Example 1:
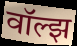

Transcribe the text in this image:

वॉल्झ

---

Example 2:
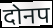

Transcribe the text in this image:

दोनप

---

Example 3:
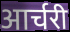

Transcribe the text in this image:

आर्चरी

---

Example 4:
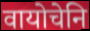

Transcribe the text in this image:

वायोचेनि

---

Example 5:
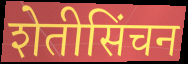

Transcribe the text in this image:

शेतीसिंचन